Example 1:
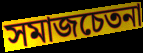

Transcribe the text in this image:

সমাজচেতনা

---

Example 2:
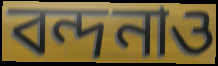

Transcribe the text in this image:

বন্দনাও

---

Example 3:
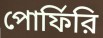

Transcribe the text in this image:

পোর্ফিরি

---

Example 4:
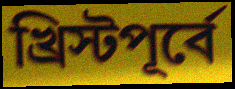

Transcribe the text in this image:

খ্রিস্টপূর্বে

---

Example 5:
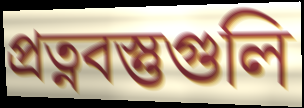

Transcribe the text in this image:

প্রত্নবস্তুগুলি